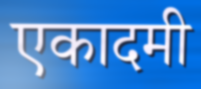
एकादमी